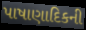
પાષાણાદિકની